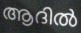
ആദിൽ